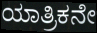
ಯಾತ್ರಿಕನೇ